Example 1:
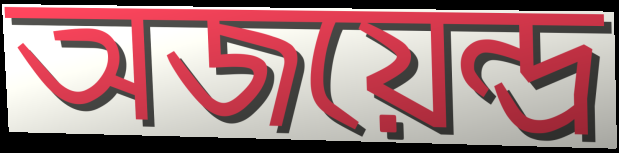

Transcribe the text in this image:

অজয়েন্দ্র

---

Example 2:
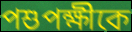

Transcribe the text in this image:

পশুপক্ষীকে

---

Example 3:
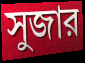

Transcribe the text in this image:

সুজার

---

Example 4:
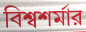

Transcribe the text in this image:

বিশ্বশর্মার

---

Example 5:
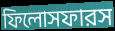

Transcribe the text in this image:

ফিলোসফারস